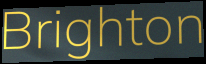
Brighton